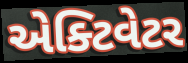
એક્ટિવેટર